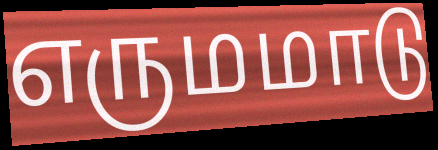
எருமமாடு